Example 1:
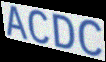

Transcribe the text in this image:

ACDC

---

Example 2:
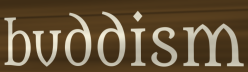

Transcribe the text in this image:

buddism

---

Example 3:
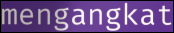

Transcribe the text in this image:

mengangkat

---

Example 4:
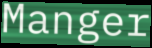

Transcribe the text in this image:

Manger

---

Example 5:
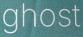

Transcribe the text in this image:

ghost